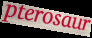
pterosaur